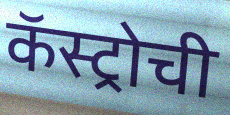
कॅस्ट्रोची